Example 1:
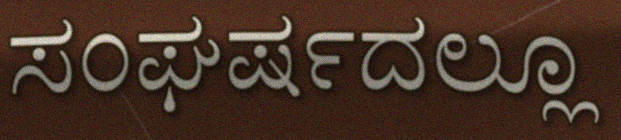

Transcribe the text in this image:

ಸಂಘರ್ಷದಲ್ಲೂ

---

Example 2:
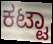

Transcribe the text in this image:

ಕಟ್ಟಾ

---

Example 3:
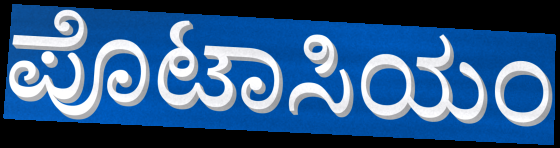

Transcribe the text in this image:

ಪೊಟಾಸಿಯಂ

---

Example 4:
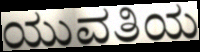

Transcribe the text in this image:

ಯುವತಿಯ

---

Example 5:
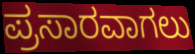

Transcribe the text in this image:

ಪ್ರಸಾರವಾಗಲು